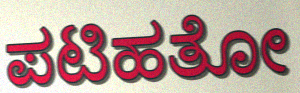
ಪಟಿಹತೋ